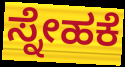
ಸ್ನೇಹಕೆ